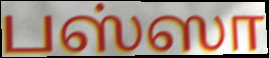
பஸ்ஸா